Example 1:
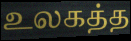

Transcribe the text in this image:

உலகத்த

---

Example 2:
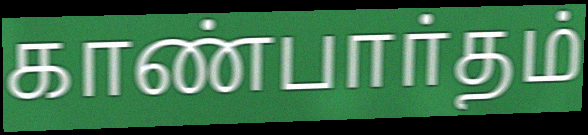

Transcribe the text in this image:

காண்பார்தம்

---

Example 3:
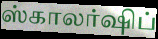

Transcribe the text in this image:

ஸ்காலர்ஷிப்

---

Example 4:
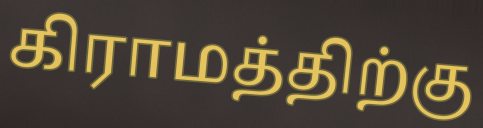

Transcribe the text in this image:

கிராமத்திற்கு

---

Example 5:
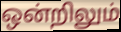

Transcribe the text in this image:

ஒன்றிலும்